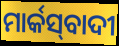
ମାର୍କସ୍‍ବାଦୀ